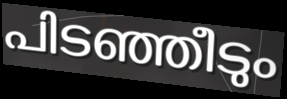
പിടഞ്ഞീടും